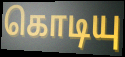
கொடியு